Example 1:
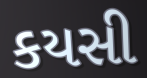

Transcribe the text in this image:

કયસી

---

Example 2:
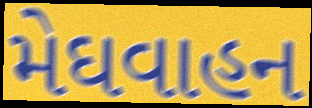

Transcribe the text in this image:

મેઘવાહન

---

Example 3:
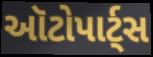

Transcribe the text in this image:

ઑટોપાર્ટ્સ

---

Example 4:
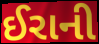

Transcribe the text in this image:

ઈરાની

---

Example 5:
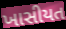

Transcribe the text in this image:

ખાસીયત